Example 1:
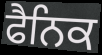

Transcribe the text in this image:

ਫੈਨਿਕ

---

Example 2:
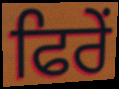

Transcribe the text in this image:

ਫਿਰੇਂ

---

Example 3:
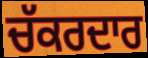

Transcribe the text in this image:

ਚੱਕਰਦਾਰ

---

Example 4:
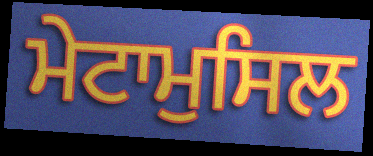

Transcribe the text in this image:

ਮੇਟਾਮੁਸਿਲ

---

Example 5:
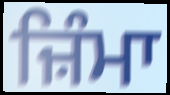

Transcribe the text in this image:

ਜ਼ਿੰਮਾ